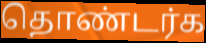
தொண்டர்க